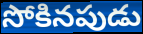
సోకినపుడు